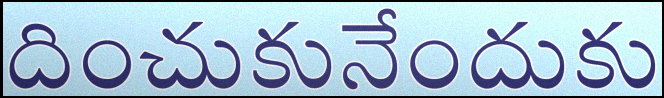
దించుకునేందుకు